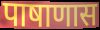
पाषाणास